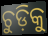
ଚୁଡ଼ିକୁ